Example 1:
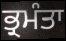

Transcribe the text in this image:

ਭ੍ਰਮੰਤਾ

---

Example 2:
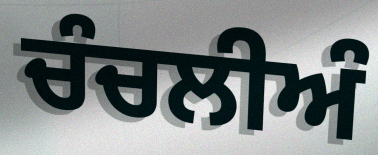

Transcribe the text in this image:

ਚੰਚਲੀਅੰ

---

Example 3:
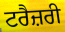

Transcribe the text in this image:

ਟਰੈਜ਼ਰੀ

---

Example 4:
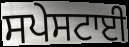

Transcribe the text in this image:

ਸਪੇਸਟਾਈ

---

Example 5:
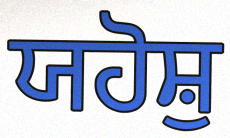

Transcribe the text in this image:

ਯਹੋਸ਼ੁ